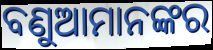
ବଣୁଆମାନଙ୍କର